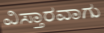
ವಿಸ್ತಾರವಾಗು